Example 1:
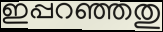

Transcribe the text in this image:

ഇപ്പറഞ്ഞതു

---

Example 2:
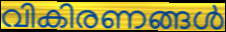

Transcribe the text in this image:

വികിരണങ്ങൾ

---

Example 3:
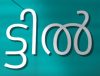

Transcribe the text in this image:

ട്ടിൽ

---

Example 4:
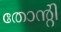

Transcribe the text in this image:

തോന്റി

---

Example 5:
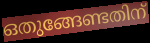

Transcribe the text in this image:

ഒതുങ്ങേണ്ടതിന്